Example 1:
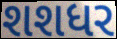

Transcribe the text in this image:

શશધર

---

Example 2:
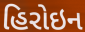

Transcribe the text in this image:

હિરોઇન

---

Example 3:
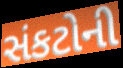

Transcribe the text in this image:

સંકટોની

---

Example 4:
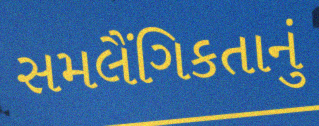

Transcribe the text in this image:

સમલૈંગિકતાનું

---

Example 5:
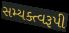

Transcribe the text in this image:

સમ્યક્ત્વરૂપી